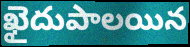
ఖైదుపాలయిన